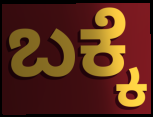
ಬಕ್ಕೆ